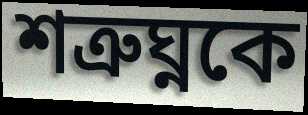
শত্রুঘ্নকে